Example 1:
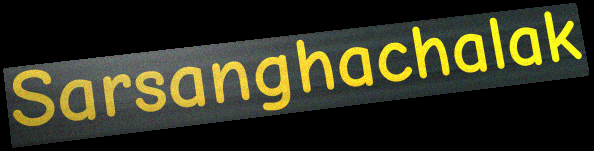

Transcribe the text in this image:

Sarsanghachalak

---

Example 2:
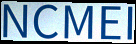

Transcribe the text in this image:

NCMEI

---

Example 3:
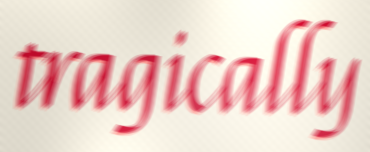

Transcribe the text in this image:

tragically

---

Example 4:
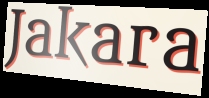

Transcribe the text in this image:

Jakara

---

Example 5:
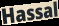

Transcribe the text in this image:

Hassal